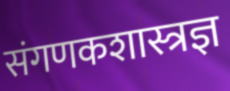
संगणकशास्त्रज्ञ